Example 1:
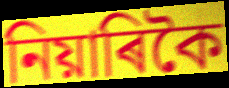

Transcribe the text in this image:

নিয়াৰিকৈ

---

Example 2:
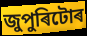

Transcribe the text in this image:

জুপুৰিটোৰ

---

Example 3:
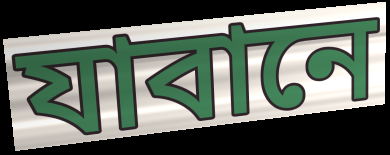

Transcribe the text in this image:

যাবানে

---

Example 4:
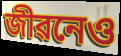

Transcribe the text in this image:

জীৱনেও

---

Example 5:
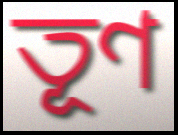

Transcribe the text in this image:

তূণ